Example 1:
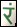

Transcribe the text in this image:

रं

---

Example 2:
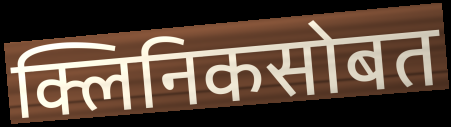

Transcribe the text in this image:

क्लिनिकसोबत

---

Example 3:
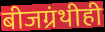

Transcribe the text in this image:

बीजग्रंथीही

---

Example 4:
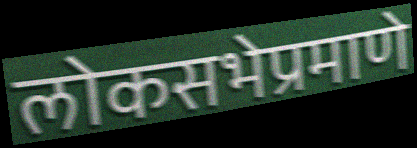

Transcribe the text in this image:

लोकसभेप्रमाणे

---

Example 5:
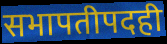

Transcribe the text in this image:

सभापतीपदही